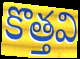
కొత్తవి